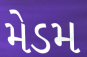
મેડમ